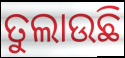
ତୁଲାଉଛି